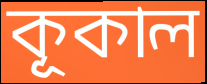
কূকাল